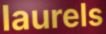
laurels